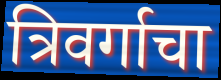
त्रिवर्गाचा